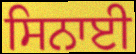
ਸਿਨਾਈ